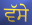
ਵੱਸੇ